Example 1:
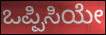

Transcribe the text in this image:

ಒಪ್ಪಿಸಿಯೇ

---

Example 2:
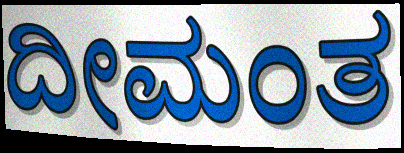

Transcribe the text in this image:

ದೀಮಂತ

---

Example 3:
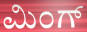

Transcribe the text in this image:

ಮಿಂಗ್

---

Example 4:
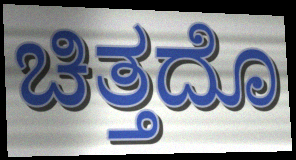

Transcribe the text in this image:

ಚಿತ್ತದೊ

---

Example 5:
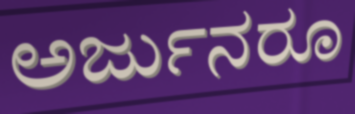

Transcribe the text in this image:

ಅರ್ಜುನರೂ